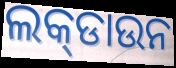
ଲକ୍‌ଡାଉନ